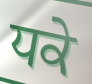
ਧਕੇ